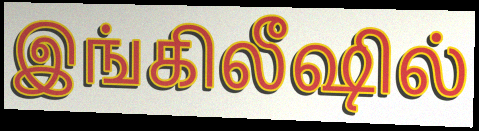
இங்கிலீஷில்